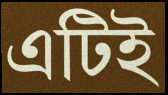
এটিই